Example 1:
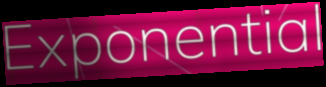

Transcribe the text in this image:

Exponential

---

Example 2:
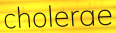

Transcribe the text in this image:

cholerae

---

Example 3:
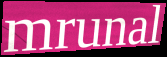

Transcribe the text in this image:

mrunal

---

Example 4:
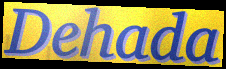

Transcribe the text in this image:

Dehada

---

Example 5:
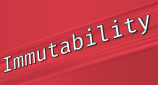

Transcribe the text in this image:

Immutability